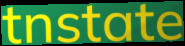
tnstate